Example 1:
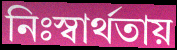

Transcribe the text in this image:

নিঃস্বার্থতায়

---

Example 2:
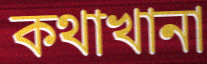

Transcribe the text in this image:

কথাখানা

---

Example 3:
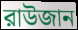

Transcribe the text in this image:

রাউজান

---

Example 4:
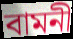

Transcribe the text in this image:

বামনী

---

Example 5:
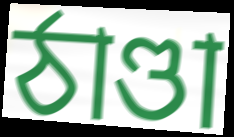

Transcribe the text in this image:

ঠাণ্ডা